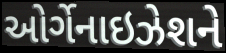
ઓર્ગેનાઇઝેશને